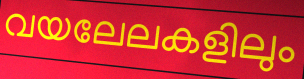
വയലേലകളിലും